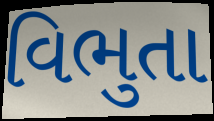
વિભુતા